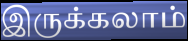
இருக்கலாம்